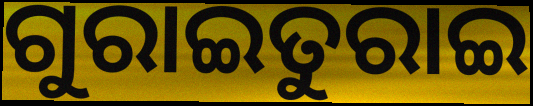
ଗୁରାଇତୁରାଇ